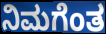
ನಿಮಗೆಂತ